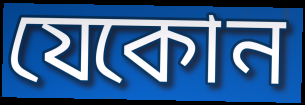
যেকোন